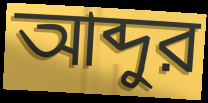
আব্দুর